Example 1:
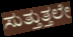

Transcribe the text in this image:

ಸುತ್ತುತ್ತಲೇ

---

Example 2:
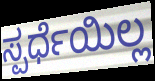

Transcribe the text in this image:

ಸ್ಪರ್ಧೆಯಿಲ್ಲ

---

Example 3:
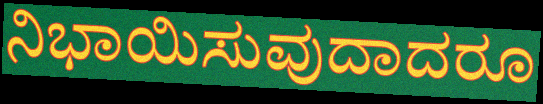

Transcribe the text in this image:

ನಿಭಾಯಿಸುವುದಾದರೂ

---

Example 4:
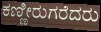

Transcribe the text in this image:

ಕಣ್ಣೀರುಗರೆದರು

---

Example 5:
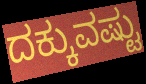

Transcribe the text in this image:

ದಕ್ಕುವಷ್ಟು